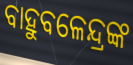
ବାହୁବଳେନ୍ଦ୍ରଙ୍କ